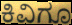
ಕಿವಿಗೂ